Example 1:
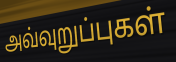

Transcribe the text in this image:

அவ்வுறுப்புகள்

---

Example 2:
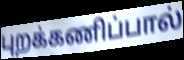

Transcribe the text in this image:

புறக்கணிப்பால்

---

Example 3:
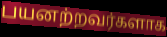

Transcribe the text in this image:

பயனற்றவர்களாக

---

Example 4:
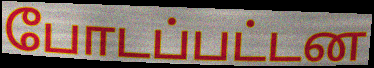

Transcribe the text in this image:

போடப்பட்டன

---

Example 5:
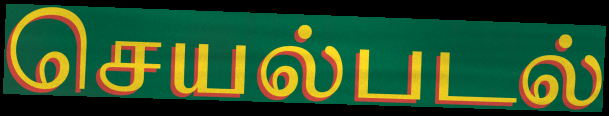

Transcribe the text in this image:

செயல்படல்